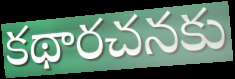
కథారచనకు